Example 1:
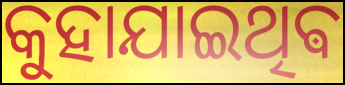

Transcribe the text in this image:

କୁହାଯାଇଥିଵ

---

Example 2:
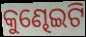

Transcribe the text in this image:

କୁଣ୍ଢେଇଟି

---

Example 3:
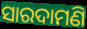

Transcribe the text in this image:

ସାରଦାମଣି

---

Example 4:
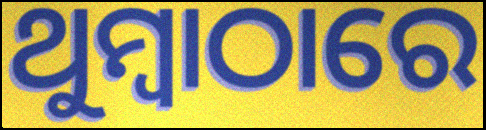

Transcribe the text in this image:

ଥୁମ୍ବାଠାରେ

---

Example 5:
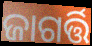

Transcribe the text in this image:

ଜାଗର୍ତ୍ତି